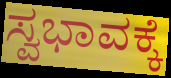
ಸ್ವಭಾವಕ್ಕೆ